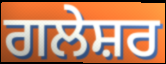
ਗਲੇਸ਼ਰ